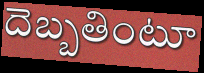
దెబ్బతింటూ